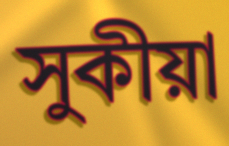
সুকীয়া